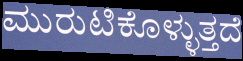
ಮುರುಟಿಕೊಳ್ಳುತ್ತದೆ